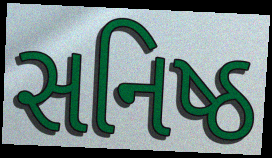
સનિષ્ઠ